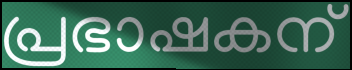
പ്രഭാഷകന്